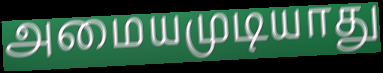
அமையமுடியாது